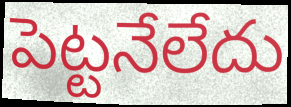
పెట్టనేలేదు